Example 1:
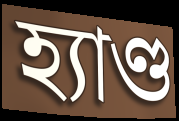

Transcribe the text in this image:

হ্যাণ্ড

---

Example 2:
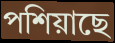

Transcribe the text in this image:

পশিয়াছে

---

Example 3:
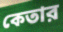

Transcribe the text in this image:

কেতার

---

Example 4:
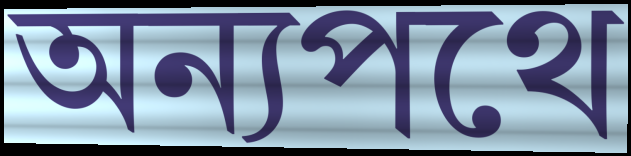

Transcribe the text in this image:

অন্যপথে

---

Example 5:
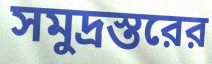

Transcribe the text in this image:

সমুদ্রস্তরের